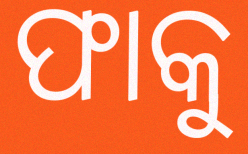
ଫାକୁ